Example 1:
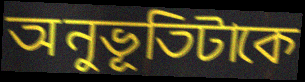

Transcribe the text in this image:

অনুভূতিটাকে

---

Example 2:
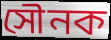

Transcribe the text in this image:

সৌনক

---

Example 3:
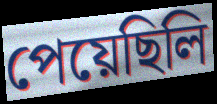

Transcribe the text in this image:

পেয়েছিলি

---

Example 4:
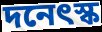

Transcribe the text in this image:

দনেৎস্ক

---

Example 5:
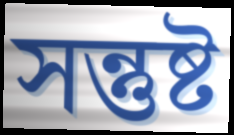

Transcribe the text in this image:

সন্তুষ্ট